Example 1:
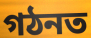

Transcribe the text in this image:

গঠনত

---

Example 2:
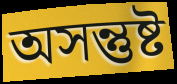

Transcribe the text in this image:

অসন্তুষ্ট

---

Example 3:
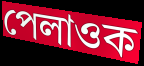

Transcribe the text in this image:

পেলাওক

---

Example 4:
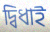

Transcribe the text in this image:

দ্বিধাই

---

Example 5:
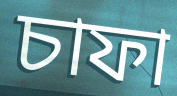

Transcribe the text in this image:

চাফা